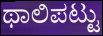
ಥಾಲಿಪಟ್ಟು